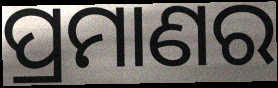
ପ୍ରମାଣର